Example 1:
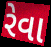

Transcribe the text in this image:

રેવા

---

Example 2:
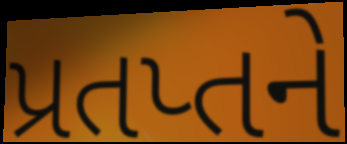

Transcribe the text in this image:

પ્રતપ્તને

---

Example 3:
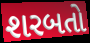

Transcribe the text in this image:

શરબતો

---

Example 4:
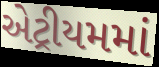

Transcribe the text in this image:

એટ્રીયમમાં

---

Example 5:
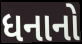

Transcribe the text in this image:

ધનાનો